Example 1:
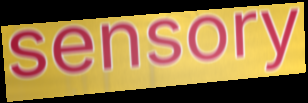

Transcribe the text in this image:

sensory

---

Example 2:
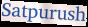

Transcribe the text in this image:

Satpurush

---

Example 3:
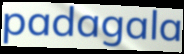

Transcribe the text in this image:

padagala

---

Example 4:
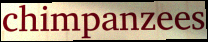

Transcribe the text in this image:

chimpanzees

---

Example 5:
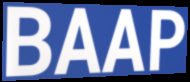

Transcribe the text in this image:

BAAP